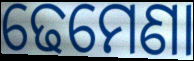
ଢେମେଣା